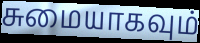
சுமையாகவும்